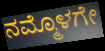
ನಮ್ಮೊಳಗೇ